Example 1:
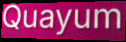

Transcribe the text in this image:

Quayum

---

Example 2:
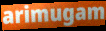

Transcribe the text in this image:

arimugam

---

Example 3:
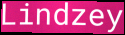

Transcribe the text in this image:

Lindzey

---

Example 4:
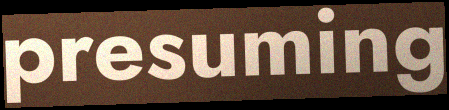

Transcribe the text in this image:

presuming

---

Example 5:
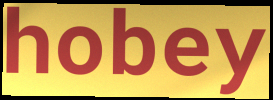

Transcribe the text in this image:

hobey